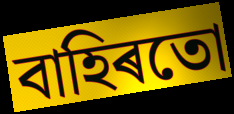
বাহিৰতো